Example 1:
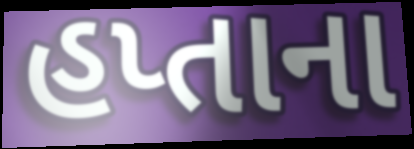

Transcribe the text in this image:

હપ્તાના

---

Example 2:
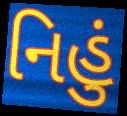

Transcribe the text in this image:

નિહું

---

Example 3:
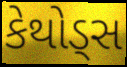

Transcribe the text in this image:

કેથોડ્સ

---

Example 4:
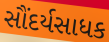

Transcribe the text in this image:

સૌંદર્યસાધક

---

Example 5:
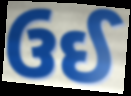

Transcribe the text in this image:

ઉઈ